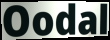
Oodal